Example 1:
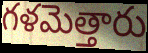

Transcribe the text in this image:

గళమెత్తారు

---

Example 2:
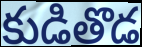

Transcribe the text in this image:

కుడితొడ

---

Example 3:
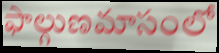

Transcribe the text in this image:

ఫాల్గుణమాసంలో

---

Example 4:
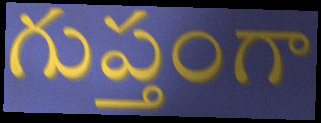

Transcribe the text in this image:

గుప్తంగా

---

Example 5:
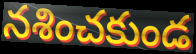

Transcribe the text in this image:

నశించకుండ